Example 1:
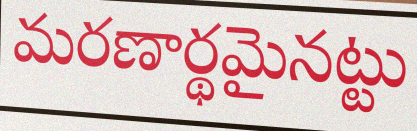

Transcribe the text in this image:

మరణార్థమైనట్టు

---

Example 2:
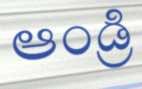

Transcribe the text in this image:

ఆండ్రి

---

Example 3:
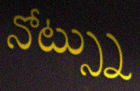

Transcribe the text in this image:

నోట్స్ను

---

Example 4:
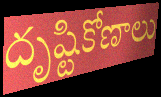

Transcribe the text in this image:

దృష్టికోణాలు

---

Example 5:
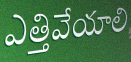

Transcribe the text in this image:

ఎత్తివేయాలి